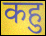
कहु